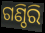
ଗଣ୍ଠିରି